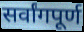
सर्वांगपूर्ण